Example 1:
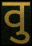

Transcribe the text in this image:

वु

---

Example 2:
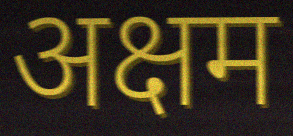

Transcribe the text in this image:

अक्षम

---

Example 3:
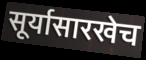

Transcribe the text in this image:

सूर्यासारखेच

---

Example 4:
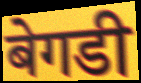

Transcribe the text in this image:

बेगडी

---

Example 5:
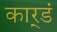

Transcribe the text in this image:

कार्डं